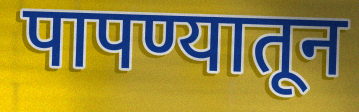
पापण्यातून